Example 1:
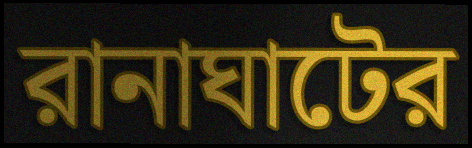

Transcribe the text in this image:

রানাঘাটের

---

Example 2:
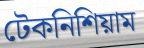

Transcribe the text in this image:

টেকনিশিয়াম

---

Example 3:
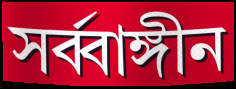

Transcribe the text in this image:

সর্ব্বাঙ্গীন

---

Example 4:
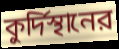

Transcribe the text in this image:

কুর্দিস্থানের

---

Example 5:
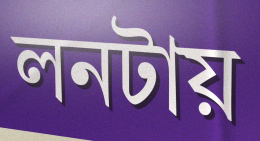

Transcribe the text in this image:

লনটায়